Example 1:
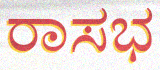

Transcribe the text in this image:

ರಾಸಭ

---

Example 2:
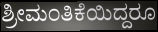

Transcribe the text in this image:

ಶ್ರೀಮಂತಿಕೆಯಿದ್ದರೂ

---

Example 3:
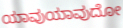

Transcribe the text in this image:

ಯಾವುಯಾವುದೋ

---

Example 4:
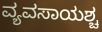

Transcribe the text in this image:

ವ್ಯವಸಾಯಶ್ಚ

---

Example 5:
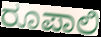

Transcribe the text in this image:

ರೂಪಾಲಿ